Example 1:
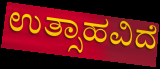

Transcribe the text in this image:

ಉತ್ಸಾಹವಿದೆ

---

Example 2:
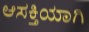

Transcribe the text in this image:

ಆಸಕ್ತಿಯಾಗಿ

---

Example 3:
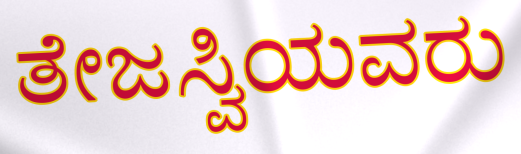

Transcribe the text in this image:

ತೇಜಸ್ವಿಯವರು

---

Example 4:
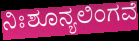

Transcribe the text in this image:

ನಿಃಶೂನ್ಯಲಿಂಗವೆ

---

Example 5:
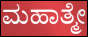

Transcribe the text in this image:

ಮಹಾತ್ಮೇ